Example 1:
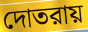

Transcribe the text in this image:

দোতরায়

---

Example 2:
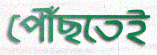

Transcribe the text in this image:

পৌঁছতেই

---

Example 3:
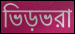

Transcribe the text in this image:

ভিড়ভরা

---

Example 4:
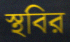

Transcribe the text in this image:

স্থবির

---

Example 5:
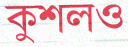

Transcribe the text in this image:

কুশলও